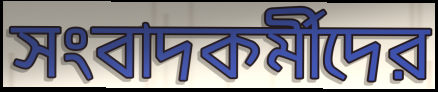
সংবাদকর্মীদের